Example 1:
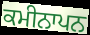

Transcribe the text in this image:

ਕਮੀਨਾਪਨ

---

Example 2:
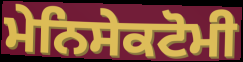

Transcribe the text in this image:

ਮੇਨਿਸੇਕਟੋਮੀ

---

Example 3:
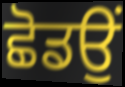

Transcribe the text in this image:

ਛੋਡਉਂ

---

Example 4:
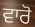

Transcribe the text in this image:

ਵਾਰੋ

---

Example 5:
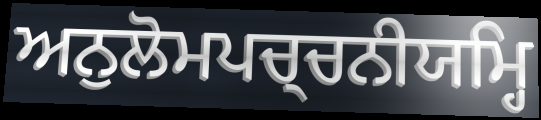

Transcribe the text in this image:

ਅਨੁਲੋਮਪਚ੍ਚਨੀਯਮ੍ਹਿ